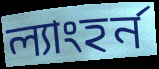
ল্যাংহর্ন